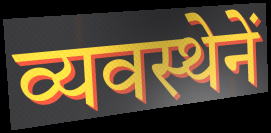
व्यवस्थेनें